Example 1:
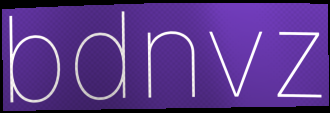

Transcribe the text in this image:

bdnvz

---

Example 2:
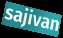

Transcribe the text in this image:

sajivan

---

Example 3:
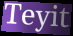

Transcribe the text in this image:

Teyit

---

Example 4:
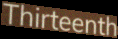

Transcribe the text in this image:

Thirteenth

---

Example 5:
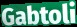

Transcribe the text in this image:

Gabtoli